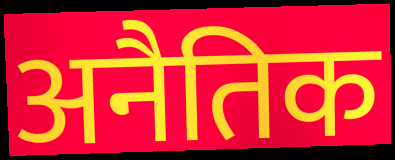
अनैतिक